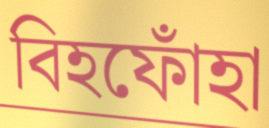
বিহফোঁহা